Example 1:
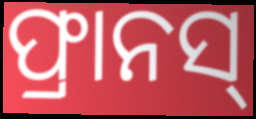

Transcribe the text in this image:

ଫ୍ରାନସ୍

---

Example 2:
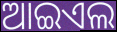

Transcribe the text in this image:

ଆଇଏଲ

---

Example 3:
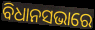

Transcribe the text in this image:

ବିଧାନସଭାରେ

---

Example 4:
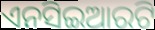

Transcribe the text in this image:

ଏନସିଇଆରଟି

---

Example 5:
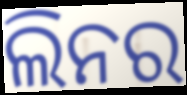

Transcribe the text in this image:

ଲିନର